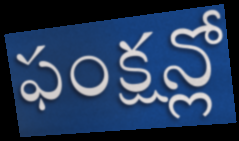
ఫంక్షన్లో